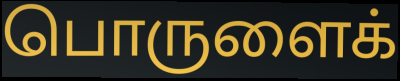
பொருளைக்